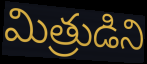
మిత్రుడిని